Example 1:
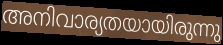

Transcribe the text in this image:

അനിവാര്യതയായിരുന്നു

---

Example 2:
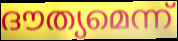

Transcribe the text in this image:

ദൗത്യമെന്ന്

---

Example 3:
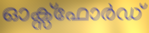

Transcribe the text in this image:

ഓക്സ്ഫോർഡ്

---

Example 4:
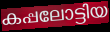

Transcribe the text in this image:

കപ്പലോട്ടിയ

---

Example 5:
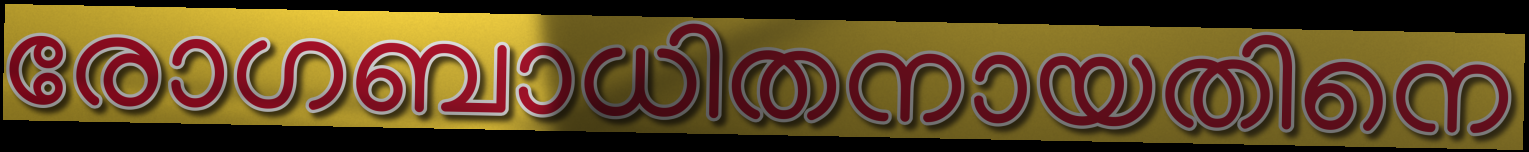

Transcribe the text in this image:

രോഗബാധിതനായതിനെ